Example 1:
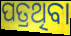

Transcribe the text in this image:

ପତ୍ରଥିବା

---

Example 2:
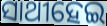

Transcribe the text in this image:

ସାଥୀହେଇ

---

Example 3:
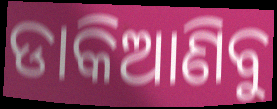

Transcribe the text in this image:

ଡାକିଆଣିବୁ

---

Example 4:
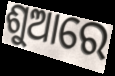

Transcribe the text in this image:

ଶୁଆରେ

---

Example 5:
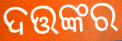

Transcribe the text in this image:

ଦତ୍ତଙ୍କର